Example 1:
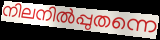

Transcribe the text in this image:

നിലനിൽപ്പുതന്നെ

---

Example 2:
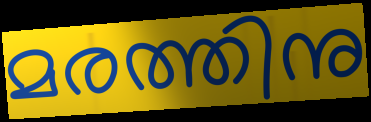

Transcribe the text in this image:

മരത്തിനു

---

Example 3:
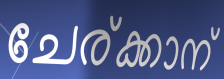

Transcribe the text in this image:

ചേര്ക്കാന്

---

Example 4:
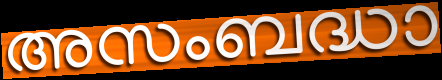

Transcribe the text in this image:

അസംബദ്ധാ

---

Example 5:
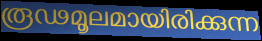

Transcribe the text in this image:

രൂഢമൂലമായിരിക്കുന്ന